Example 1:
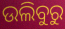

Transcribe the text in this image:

ଉଲିବୁରୁ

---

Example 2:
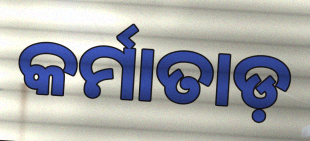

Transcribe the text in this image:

କର୍ମାତାଡ଼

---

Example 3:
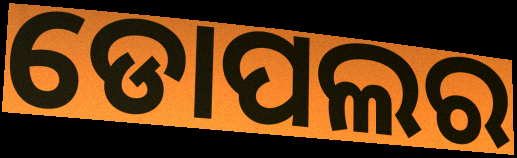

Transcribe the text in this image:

ଡୋପଲର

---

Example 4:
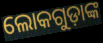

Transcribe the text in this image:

ଲୋକଗୁଡ଼ାଙ୍କ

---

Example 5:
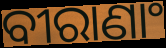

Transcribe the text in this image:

ବୀରାଣାଂ